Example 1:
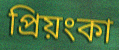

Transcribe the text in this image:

প্ৰিয়ংকা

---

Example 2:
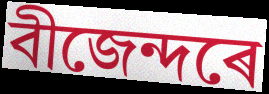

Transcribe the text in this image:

বীজেন্দৰে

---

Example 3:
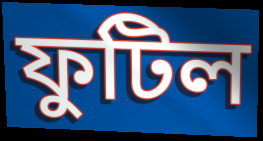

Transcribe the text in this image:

ফুটিল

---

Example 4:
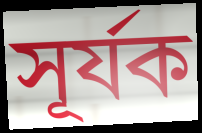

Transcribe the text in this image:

সূৰ্যক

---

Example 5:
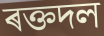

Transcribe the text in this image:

ৰক্তদল